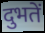
दुभतें